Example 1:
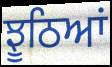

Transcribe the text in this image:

ਝੂਠਿਆਂ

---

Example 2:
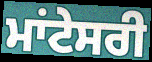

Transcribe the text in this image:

ਮਾਂਟੇਸਰੀ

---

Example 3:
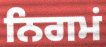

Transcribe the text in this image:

ਨਿਗਮਂ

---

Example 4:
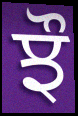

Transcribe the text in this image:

ਝੌ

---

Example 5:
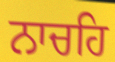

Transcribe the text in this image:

ਨਾਚਹਿ